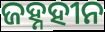
ଜହ୍ନହୀନ